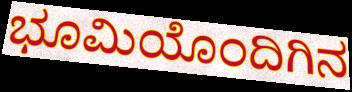
ಭೂಮಿಯೊಂದಿಗಿನ